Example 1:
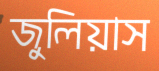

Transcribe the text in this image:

জুলিয়াস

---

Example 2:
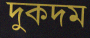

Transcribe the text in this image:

দুকদম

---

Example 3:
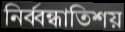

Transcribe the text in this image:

নির্ব্বন্ধাতিশয়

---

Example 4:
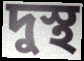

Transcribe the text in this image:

দুস্থ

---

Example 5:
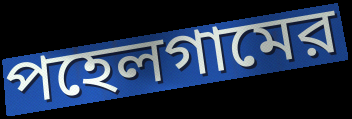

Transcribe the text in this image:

পহেলগামের